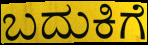
ಬದುಕಿಗೆ